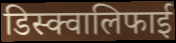
डिस्क्वालिफाई